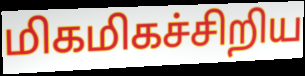
மிகமிகச்சிறிய